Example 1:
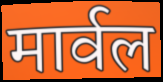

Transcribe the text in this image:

मार्वल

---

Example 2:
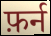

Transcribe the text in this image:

फ़र्न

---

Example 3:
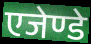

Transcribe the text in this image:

एजेण्डे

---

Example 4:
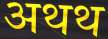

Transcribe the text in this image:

अथथ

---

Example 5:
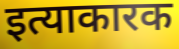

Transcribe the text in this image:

इत्याकारक